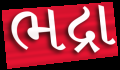
ભદ્રા